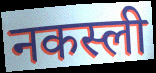
नकस्ली